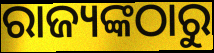
ରାଜ୍ୟଙ୍କଠାରୁ